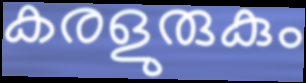
കരളുരുകും